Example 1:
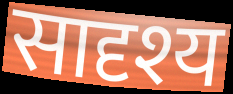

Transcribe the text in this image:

सादृश्य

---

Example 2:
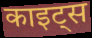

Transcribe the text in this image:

काइट्स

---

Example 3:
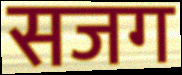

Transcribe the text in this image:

सजग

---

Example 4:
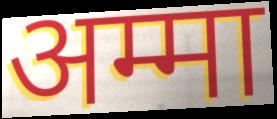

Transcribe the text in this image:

अम्मा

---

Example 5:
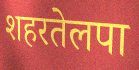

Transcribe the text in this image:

शहरतेलपा